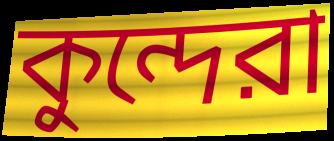
কুন্দেরা